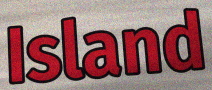
Island